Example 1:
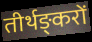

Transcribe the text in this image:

तीर्थङ्करों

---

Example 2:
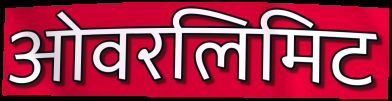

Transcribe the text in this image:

ओवरलिमिट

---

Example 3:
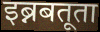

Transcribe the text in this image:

इब्नबतूता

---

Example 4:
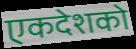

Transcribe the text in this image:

एकदेशको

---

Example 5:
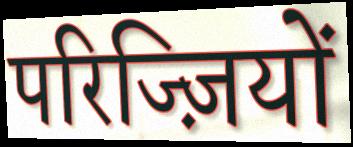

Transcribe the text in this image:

परिज्ज़ियों